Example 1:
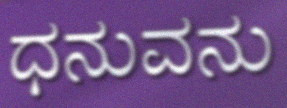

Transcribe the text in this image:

ಧನುವನು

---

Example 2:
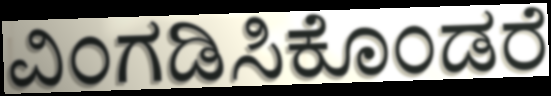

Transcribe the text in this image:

ವಿಂಗಡಿಸಿಕೊಂಡರೆ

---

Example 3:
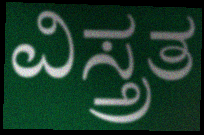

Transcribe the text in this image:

ವಿಸ್ತ್ರತ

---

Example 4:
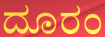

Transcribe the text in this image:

ದೂರಂ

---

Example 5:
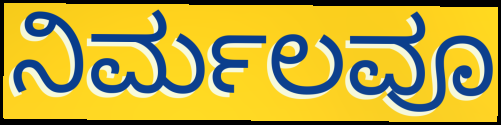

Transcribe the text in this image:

ನಿರ್ಮಲವೂ